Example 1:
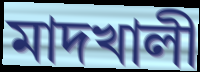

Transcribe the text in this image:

মাদখালী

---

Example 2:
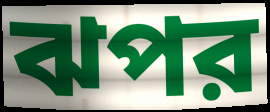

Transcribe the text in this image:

ঝপর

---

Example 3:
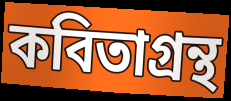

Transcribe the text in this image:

কবিতাগ্রন্থ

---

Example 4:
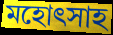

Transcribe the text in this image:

মহোৎসাহ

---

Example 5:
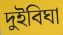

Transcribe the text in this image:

দুইবিঘা